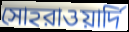
সোহরাওয়ার্দি